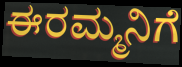
ಈರಮ್ಮನಿಗೆ